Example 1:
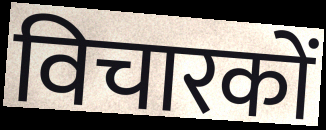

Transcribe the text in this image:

विचारकों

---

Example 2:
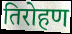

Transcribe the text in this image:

तिरोहण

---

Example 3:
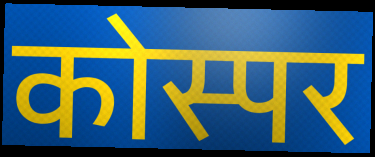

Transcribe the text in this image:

कोस्पर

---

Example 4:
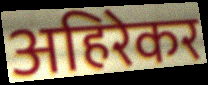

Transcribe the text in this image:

अहिरेकर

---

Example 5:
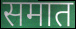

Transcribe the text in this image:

समात